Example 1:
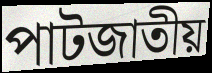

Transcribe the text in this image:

পাটজাতীয়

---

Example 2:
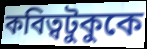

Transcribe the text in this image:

কবিত্বটুকুকে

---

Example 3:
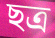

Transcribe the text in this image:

ছত্র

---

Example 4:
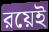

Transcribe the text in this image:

রয়েই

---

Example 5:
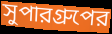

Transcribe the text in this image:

সুপারগ্রুপের